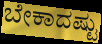
ಬೇಕಾದಷ್ಟು